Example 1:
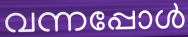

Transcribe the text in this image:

വന്നപ്പോൾ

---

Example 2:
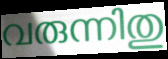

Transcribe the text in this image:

വരുന്നിതു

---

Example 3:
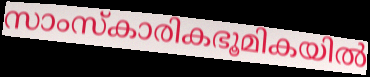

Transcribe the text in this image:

സാംസ്കാരികഭൂമികയിൽ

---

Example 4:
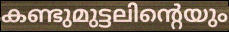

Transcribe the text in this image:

കണ്ടുമുട്ടലിന്റെയും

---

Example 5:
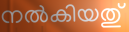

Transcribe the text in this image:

നൽകിയതു്